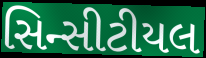
સિન્સીટીયલ